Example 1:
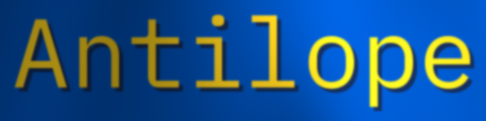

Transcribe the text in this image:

Antilope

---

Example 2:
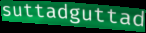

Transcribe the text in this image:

suttadguttad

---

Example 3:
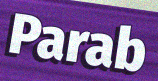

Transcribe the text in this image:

Parab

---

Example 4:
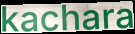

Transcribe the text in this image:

kachara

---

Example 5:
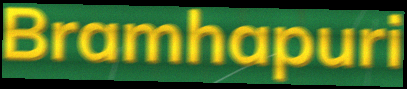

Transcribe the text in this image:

Bramhapuri